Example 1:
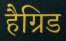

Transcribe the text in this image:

हैग्रिड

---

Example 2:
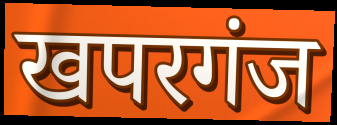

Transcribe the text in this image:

खपरगंज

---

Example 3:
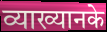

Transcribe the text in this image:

व्याख्यानके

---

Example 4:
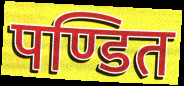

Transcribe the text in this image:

पण्डित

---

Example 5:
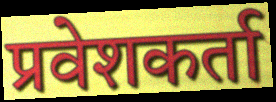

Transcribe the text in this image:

प्रवेशकर्ता